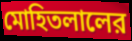
মোহিতলালের